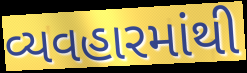
વ્યવહારમાંથી